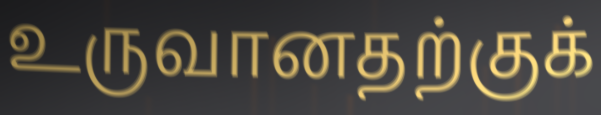
உருவானதற்குக்